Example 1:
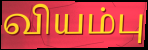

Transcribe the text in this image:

வியம்பு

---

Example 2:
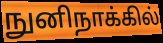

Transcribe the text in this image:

நுனிநாக்கில்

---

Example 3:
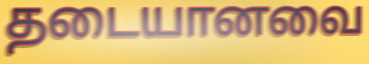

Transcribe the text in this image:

தடையானவை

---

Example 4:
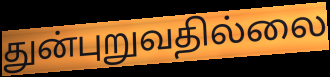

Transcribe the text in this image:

துன்புறுவதில்லை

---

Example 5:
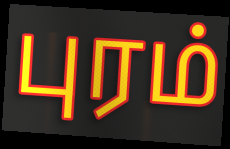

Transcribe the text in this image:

புரம்